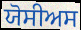
ਯੋਸੀਅਸ